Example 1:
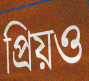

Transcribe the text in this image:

প্রিয়ও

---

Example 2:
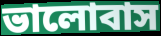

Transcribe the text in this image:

ভালোবাস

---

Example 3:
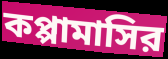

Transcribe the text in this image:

কপ্পামাসির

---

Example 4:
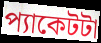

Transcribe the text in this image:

প্যাকেটটা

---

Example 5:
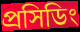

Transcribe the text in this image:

প্রসিডিং